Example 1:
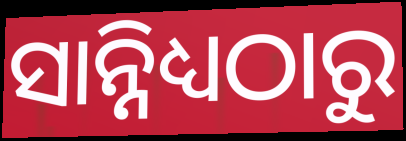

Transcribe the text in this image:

ସାନ୍ନିଧ୍ୟଠାରୁ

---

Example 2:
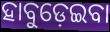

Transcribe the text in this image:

ହାବୁଡ଼େଇବା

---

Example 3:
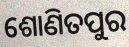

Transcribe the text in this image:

ଶୋଣିତପୁର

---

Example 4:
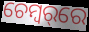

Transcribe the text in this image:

ଚେମ୍ବର୍‌ରେ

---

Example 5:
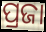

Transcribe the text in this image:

ପ୍ରଜା